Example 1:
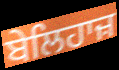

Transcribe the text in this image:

ਬੇਲਿਹਾਜ਼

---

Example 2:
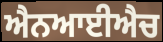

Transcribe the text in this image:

ਐਨਆਈਐਚ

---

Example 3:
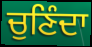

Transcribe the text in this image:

ਚੁਣਿੰਦਾ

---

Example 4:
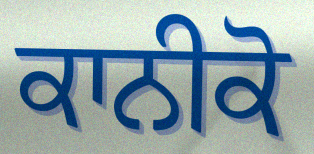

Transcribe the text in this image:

ਕਾਨੀਕੋ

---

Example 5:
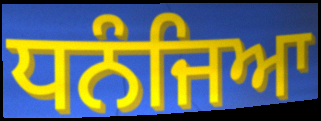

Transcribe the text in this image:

ਧਨੰਜਿਆ